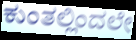
ಕುಂತಲ್ಲಿಂದಲೇ